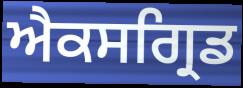
ਐਕਸਗ੍ਰਿਡ